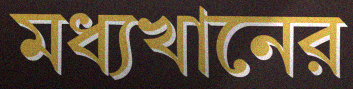
মধ্যখানের